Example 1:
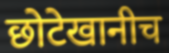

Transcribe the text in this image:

छोटेखानीच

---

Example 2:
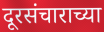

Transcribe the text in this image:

दूरसंचाराच्या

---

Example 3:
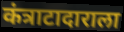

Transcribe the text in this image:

कंत्राटादाराला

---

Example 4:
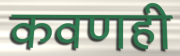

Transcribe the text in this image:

कवणही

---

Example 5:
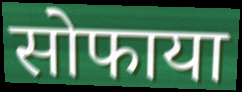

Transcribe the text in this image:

सोफाया